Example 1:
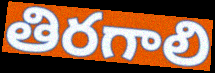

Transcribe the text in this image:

తిరగాలి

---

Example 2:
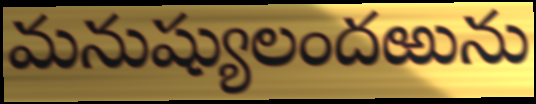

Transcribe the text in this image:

మనుష్యులందఱును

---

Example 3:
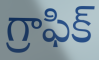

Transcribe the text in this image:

గ్రాఫిక్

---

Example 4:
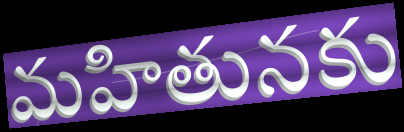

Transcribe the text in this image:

మహితునకు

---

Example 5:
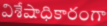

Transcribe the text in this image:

విశేషాధికారంగా